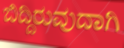
ಬಿದ್ದಿರುವುದಾಗಿ